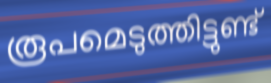
രൂപമെടുത്തിട്ടുണ്ട്